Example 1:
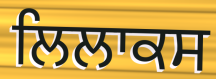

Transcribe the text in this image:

ਲਿਲਾਕਸ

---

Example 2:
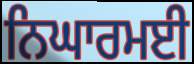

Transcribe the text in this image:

ਨਿਘਾਰਮਈ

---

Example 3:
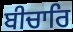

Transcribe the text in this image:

ਬੀਚਾਰਿ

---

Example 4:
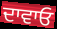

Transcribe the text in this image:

ਦਾਵਾਓ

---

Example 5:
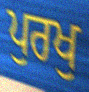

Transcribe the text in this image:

ਪੁਰਖੁ